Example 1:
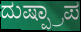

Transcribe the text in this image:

ದುಷ್ಪ್ರಾಪ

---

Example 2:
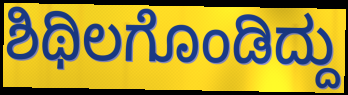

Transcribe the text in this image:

ಶಿಥಿಲಗೊಂಡಿದ್ದು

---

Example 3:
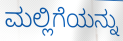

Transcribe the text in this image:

ಮಲ್ಲಿಗೆಯನ್ನು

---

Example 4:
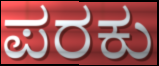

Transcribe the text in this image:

ಪರಕು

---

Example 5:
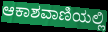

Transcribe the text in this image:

ಆಕಾಶವಾಣಿಯಲ್ಲಿ